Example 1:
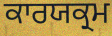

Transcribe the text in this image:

ਕਾਰਯਕ੍ਰਮ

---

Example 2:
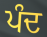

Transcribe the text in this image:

ਪੰਦ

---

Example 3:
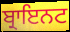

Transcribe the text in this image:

ਬ੍ਰਾਇਨਟ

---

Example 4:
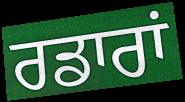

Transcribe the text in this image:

ਰਡਾਰਾਂ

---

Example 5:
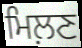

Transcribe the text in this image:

ਮਿਲ਼ਣ